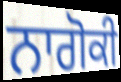
ਨਾਗੋਕੀ